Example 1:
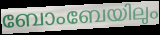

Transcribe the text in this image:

ബോംബേയിലും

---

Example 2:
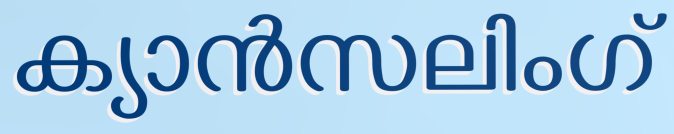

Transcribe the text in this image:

ക്യാൻസലിംഗ്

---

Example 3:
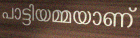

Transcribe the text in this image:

പാട്ടിയമ്മയാണ്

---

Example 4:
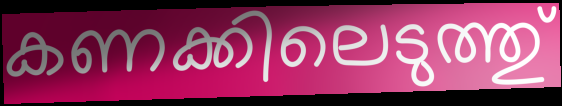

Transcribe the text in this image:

കണക്കിലെടുത്തു്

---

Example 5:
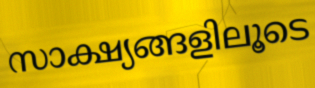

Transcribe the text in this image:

സാക്ഷ്യങ്ങളിലൂടെ